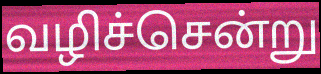
வழிச்சென்று